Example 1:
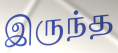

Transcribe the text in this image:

இருந்த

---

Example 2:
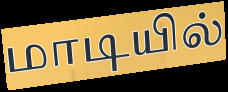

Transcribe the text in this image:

மாடியில்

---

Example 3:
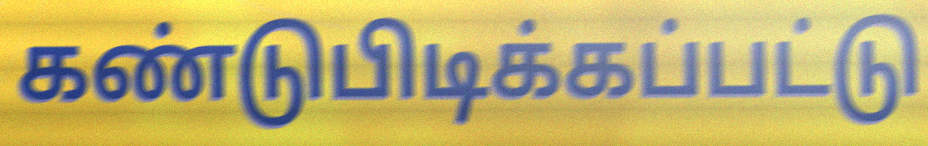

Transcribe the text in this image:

கண்டுபிடிக்கப்பட்டு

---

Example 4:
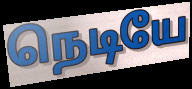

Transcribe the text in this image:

நெடியே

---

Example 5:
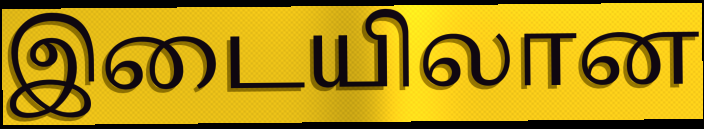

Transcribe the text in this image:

இடையிலான